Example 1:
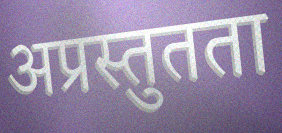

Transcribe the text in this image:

अप्रस्तुतता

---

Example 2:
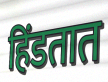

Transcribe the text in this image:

हिंडतात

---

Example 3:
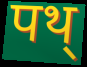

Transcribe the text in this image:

पथ्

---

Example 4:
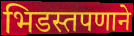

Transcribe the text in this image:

भिडस्तपणाने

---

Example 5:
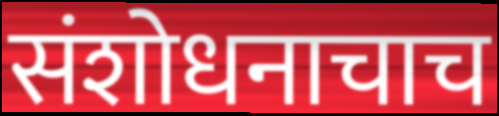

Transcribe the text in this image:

संशोधनाचाच